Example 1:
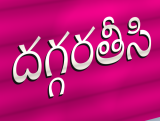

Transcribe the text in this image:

దగ్గరతీసి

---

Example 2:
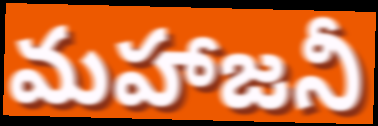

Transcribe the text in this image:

మహాజనీ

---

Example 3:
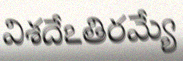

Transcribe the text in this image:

విశదేఽతిరమ్యే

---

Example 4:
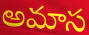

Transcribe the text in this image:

అమాస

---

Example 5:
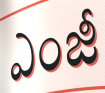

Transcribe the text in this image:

ఎంజీ